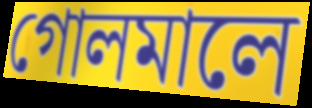
গোলমালে